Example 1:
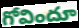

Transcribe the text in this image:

గోవిందూ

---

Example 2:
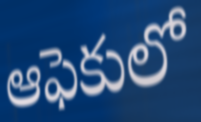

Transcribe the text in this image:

ఆఫెకులో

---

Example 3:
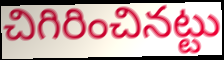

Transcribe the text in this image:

చిగిరించినట్టు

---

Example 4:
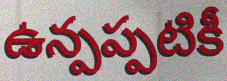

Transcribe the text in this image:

ఉన్పప్పటికీ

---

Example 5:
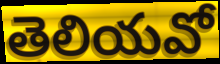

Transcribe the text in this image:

తెలియవో